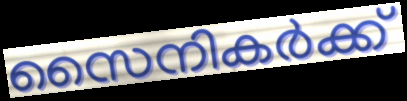
സൈനികർക്ക്